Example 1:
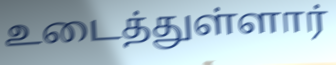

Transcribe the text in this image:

உடைத்துள்ளார்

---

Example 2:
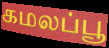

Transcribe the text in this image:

கமலப்பூ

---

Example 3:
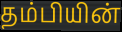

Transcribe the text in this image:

தம்பியின்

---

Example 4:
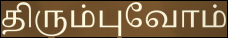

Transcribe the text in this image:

திரும்புவோம்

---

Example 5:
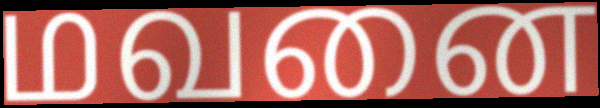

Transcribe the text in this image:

மவனை